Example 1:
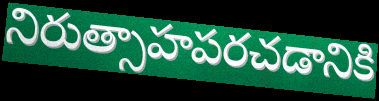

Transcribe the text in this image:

నిరుత్సాహపరచడానికి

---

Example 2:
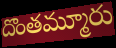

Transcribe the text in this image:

దొంతమ్మూరు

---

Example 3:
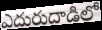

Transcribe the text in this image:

ఎదురుదాడిలో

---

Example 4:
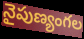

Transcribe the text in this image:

నైపుణ్యంగల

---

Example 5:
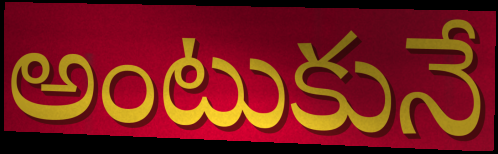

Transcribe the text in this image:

అంటుకునే